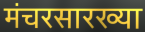
मंचरसारख्या